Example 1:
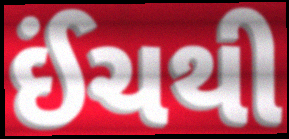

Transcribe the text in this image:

ઈંચથી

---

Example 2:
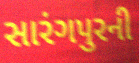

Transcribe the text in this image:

સારંગપુરની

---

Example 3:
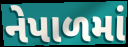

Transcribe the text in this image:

નેપાળમાં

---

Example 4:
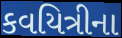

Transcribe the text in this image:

કવયિત્રીના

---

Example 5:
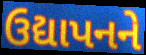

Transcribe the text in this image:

ઉદ્યાપનને